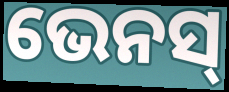
ଭେନସ୍